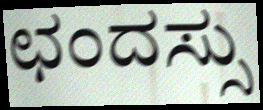
ಛಂದಸ್ಸು